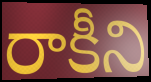
రాకీని